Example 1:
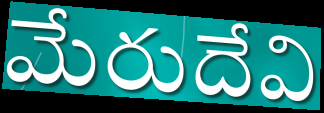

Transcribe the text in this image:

మేరుదేవి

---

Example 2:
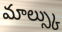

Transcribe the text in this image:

మాల్స్కు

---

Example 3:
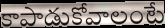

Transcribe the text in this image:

కాపాడుకోవాలంటే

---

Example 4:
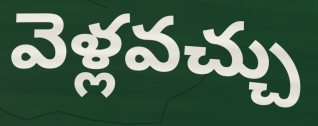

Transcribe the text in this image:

వెళ్లవచ్చు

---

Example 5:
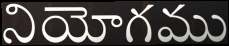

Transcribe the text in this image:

నియోగము